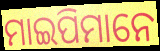
ମାଇପିମାନେ